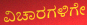
ವಿಚಾರಗಳಿಗೇ